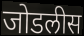
जोडलीस